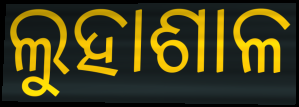
ଲୁହାଶାଳ